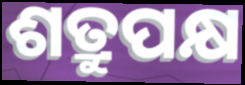
ଶତ୍ରୁପକ୍ଷ